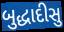
બુદ્ધાદીસુ